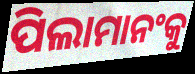
ପିଲାମାନଂକୁ